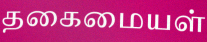
தகைமையள்